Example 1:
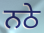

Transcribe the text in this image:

ਨਠੇ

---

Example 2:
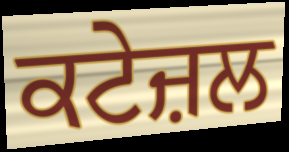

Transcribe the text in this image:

ਕਟੇਜ਼ਲ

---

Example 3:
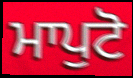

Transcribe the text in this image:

ਮਾਪੁਟੋ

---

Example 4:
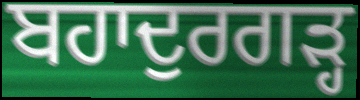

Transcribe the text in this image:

ਬਹਾਦੁਰਗੜ੍ਹ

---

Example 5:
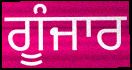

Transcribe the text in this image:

ਗੂੰਜਾਰ